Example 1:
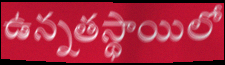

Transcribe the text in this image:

ఉన్నతస్థాయిలో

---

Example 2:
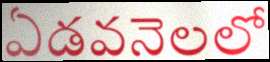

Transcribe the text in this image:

ఏడవనెలలో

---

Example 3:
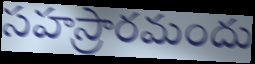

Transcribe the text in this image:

సహస్రారమందు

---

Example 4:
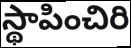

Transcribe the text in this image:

స్థాపించిరి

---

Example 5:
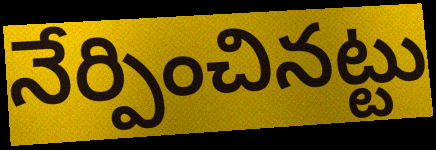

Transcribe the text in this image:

నేర్పించినట్టు